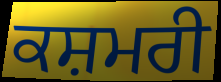
ਕਸ਼ਮਰੀ